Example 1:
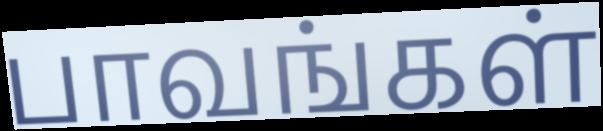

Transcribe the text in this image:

பாவங்கள்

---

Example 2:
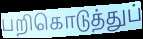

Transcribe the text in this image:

பறிகொடுத்துப்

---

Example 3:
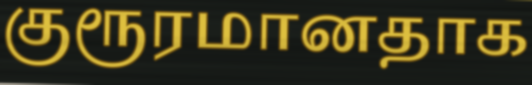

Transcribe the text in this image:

குரூரமானதாக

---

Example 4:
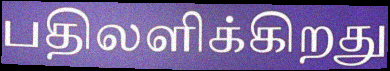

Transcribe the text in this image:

பதிலளிக்கிறது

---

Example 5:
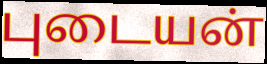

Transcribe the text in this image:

புடையன்